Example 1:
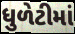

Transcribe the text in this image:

ધુળેટીમાં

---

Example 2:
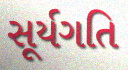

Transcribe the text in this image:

સૂર્યગતિ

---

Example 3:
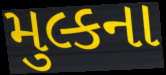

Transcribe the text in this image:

મુલ્કના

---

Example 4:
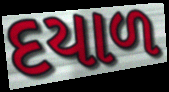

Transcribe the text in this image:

દયાળ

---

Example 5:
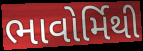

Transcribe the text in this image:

ભાવોર્મિથી